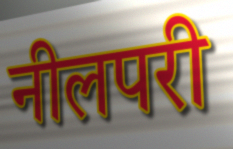
नीलपरी